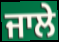
ਜਾਲੇ